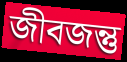
জীবজন্তু